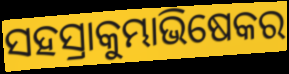
ସହସ୍ରାକୁମ୍ଭାଭିଷେକର